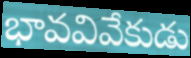
భావవివేకుడు